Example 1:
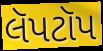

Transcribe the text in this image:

લૅપટૉપ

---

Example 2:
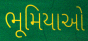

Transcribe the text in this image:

ભૂમિયાઓ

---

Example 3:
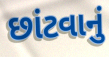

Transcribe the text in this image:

છાંટવાનું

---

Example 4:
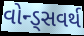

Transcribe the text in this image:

વોન્ડ્સવર્થ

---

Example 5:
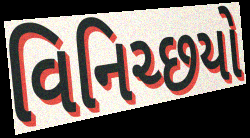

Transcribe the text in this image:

વિનિચ્છયો